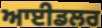
ਆਈਡਲਰ